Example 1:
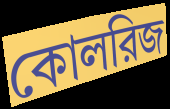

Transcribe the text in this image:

কোলরিজ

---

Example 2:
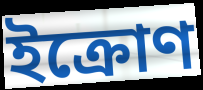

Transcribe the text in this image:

ইক্রোণ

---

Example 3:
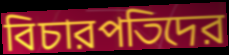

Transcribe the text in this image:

বিচারপতিদের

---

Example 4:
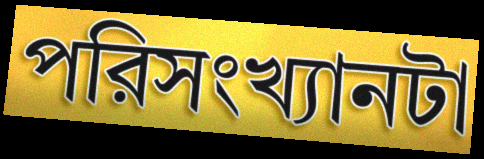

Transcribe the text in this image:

পরিসংখ্যানটা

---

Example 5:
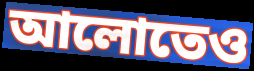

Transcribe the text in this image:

আলোতেও